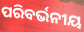
ପରିବର୍ଭନୀୟ